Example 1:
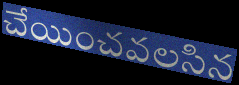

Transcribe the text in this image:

చేయించవలసిన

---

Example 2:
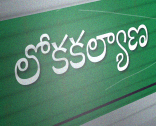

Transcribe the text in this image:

లోకకల్యాణ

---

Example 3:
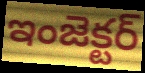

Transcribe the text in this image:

ఇంజెక్టర్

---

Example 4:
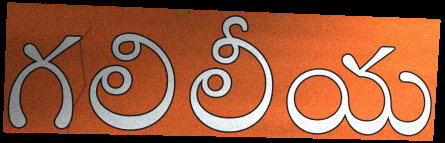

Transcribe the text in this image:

గలిలీయ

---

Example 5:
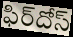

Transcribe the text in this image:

ఫిర్‌దోస్